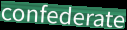
confederate